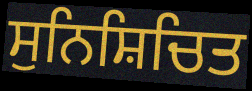
ਸੁਨਿਸ਼ਿਚਿਤ